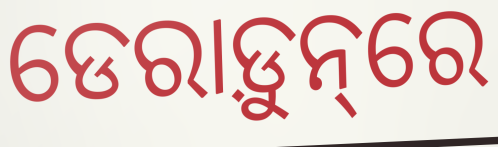
ଡେରାଡ଼ୁନ୍‌ରେ